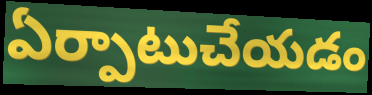
ఏర్పాటుచేయడం